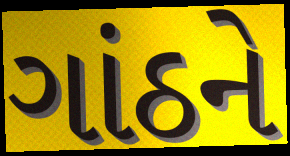
ગાંઠને